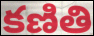
కణితి